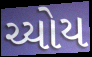
ચ્યોય